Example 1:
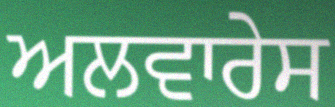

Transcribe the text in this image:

ਅਲਵਾਰੇਸ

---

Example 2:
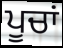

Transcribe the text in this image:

ਪੂਚਾਂ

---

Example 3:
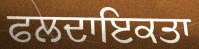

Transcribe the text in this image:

ਫਲਦਾਇਕਤਾ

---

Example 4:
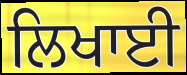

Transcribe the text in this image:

ਲਿਖਾਈ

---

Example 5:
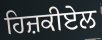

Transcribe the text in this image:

ਹਿਜ਼ਕੀਏਲ